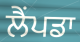
ਲੈਂਪਡਾ